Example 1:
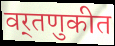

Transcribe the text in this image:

वर्तणुकीत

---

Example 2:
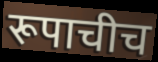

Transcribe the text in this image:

रूपाचीच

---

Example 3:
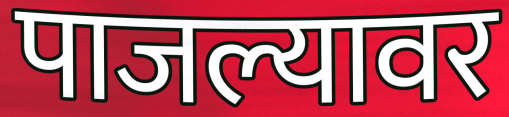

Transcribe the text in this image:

पाजल्यावर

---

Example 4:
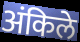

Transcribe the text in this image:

अंकिले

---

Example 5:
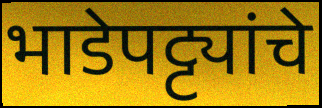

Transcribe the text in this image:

भाडेपट्ट्यांचे